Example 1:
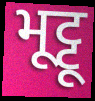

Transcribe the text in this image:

भूट्टू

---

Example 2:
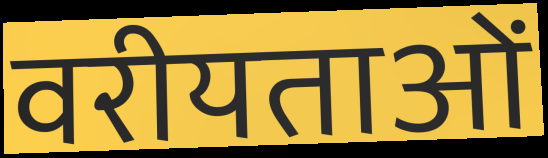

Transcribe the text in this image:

वरीयताओं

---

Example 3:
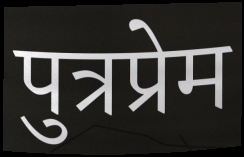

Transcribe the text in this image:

पुत्रप्रेम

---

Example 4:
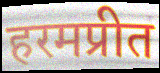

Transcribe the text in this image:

हरमप्रीत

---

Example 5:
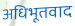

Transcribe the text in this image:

अधिभूतवाद